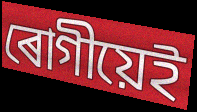
ৰোগীয়েই